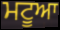
ਮਟੂਆ